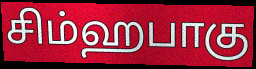
சிம்ஹபாகு